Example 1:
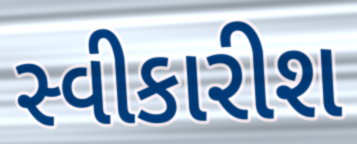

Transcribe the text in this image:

સ્વીકારીશ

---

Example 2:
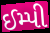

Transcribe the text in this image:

ઈમ્પી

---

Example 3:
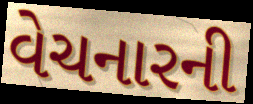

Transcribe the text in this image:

વેચનારની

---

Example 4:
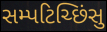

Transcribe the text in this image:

સમ્પટિચ્છિંસુ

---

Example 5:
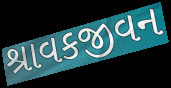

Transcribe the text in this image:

શ્રાવકજીવન